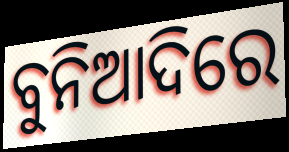
ବୁନିଆଦିରେ